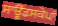
ਸਾਊਂਡਸਕੇਪਾਂ